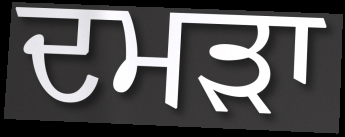
ਦਮੜਾ